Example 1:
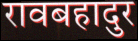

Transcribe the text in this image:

रावबहादुर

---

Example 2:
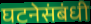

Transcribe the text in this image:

घटनेसंबंधी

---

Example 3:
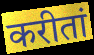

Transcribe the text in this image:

करीतां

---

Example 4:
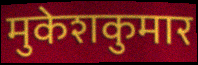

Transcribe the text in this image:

मुकेशकुमार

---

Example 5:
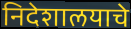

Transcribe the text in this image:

निदेशालयाचे